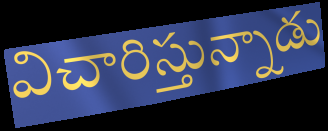
విచారిస్తున్నాడు